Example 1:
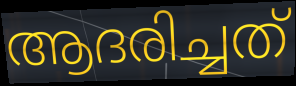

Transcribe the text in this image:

ആദരിച്ചത്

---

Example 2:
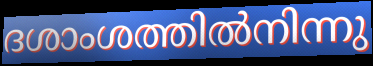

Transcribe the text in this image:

ദശാംശത്തിൽനിന്നു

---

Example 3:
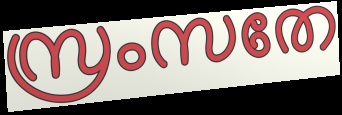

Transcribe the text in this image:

സ്രംസതേ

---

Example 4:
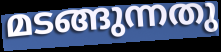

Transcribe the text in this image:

മടങ്ങുന്നതു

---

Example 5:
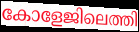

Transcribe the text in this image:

കോളേജിലെത്തി